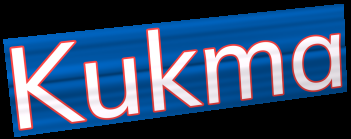
Kukma